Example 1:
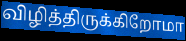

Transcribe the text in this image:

விழித்திருக்கிறோமா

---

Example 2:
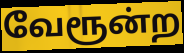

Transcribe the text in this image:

வேரூன்ற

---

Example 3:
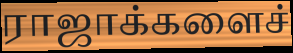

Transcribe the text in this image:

ராஜாக்களைச்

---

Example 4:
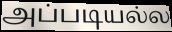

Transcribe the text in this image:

அப்படியல்ல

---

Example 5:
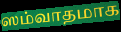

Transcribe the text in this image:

ஸம்வாதமாக